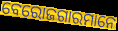
ବେରୋଜଗାରମାନେ